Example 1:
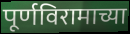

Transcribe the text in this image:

पूर्णविरामाच्या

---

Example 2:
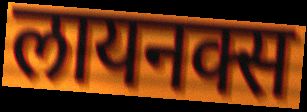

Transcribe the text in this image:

लायनक्स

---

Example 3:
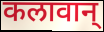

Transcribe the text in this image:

कलावान्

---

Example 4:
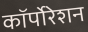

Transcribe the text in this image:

कॉर्पोरेशन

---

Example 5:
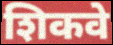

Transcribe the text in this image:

शिकवे